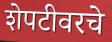
शेपटीवरचे